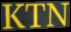
KTN